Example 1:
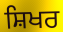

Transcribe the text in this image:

ਸ਼ਿਖਰ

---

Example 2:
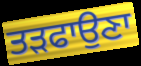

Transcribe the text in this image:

ਤੜਫਾਉਣਾ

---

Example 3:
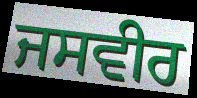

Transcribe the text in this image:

ਜਸਵੀਰ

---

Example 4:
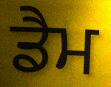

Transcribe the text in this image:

ਡੈਮ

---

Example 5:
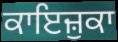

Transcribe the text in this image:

ਕਾਇਜ਼ੁਕਾ